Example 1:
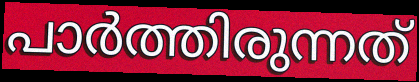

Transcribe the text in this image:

പാർത്തിരുന്നത്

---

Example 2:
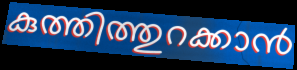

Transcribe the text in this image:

കുത്തിത്തുറക്കാൻ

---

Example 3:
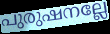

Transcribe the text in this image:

പുരുഷനല്ലേ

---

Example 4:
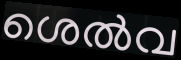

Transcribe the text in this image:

ശെൽവ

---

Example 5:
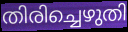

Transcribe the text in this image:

തിരിച്ചെഴുതി